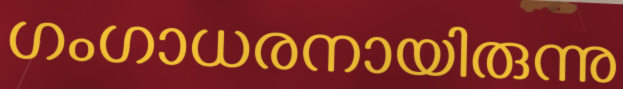
ഗംഗാധരനായിരുന്നു